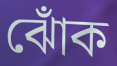
ঝোঁক